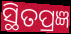
ସ୍ଥିତପ୍ରଜ୍ଞ